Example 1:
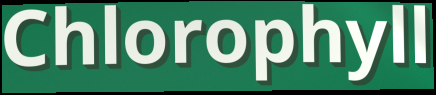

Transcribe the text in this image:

Chlorophyll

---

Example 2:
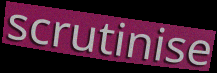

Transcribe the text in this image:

scrutinise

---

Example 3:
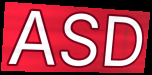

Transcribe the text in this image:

ASD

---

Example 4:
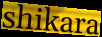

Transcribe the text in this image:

shikara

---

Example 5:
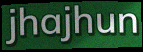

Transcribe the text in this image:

jhajhun